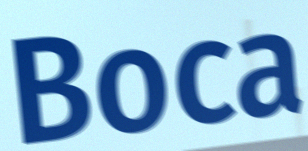
Boca